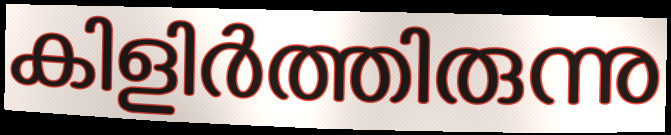
കിളിർത്തിരുന്നു